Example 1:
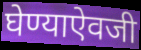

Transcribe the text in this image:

घेण्याऐवजी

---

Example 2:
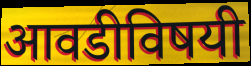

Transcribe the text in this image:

आवडीविषयी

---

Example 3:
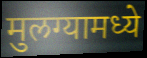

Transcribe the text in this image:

मुलग्यामध्ये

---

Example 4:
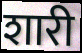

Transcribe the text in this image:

शारी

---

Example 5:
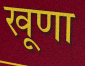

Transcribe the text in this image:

खूणा